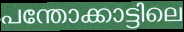
പന്തോക്കാട്ടിലെ